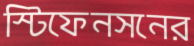
স্টিফেনসনের